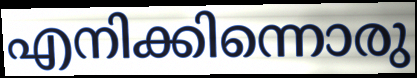
എനിക്കിന്നൊരു